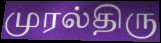
முரல்திரு